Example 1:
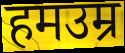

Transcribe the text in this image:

हमउम्र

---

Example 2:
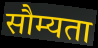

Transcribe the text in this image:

सौम्यता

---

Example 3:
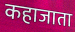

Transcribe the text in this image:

कहाजाता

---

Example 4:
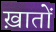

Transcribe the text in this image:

ख़ातों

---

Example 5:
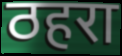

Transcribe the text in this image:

ठहरा